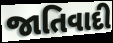
જાતિવાદી